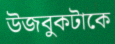
উজবুকটাকে